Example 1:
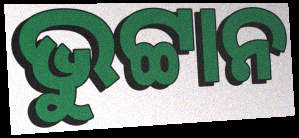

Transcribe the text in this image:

ଭୁଟ୍ଟାନ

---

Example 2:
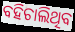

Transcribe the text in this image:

ବହିଚାଲିଥିବ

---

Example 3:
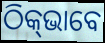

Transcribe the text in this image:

ଠିକ୍‌ଭାବେ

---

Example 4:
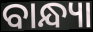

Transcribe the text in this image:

ବାନ୍ଧ୍ୟା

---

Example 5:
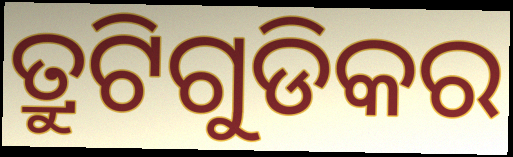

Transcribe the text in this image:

ତ୍ରୁଟିଗୁଡିକର